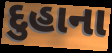
દુહાના